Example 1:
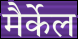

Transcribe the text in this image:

मैर्केल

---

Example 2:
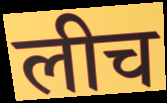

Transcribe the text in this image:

लीच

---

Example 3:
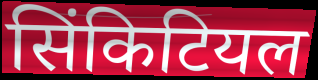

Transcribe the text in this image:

सिंकिटियल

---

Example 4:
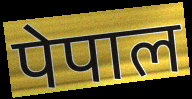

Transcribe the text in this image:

पेपाल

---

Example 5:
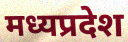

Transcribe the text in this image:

मध्यप्रदेश